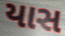
યાસ